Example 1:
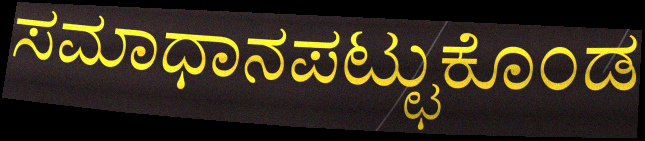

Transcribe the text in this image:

ಸಮಾಧಾನಪಟ್ಟುಕೊಂಡ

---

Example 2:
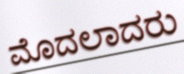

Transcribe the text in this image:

ಮೊದಲಾದರು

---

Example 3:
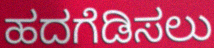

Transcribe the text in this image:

ಹದಗೆಡಿಸಲು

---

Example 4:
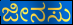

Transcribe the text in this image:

ಜೀನಸು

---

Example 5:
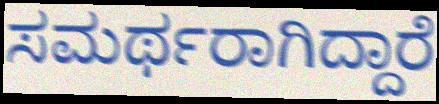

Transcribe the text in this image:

ಸಮರ್ಥರಾಗಿದ್ದಾರೆ